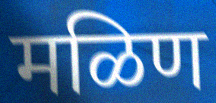
मळिण